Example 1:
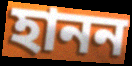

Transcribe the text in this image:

হানন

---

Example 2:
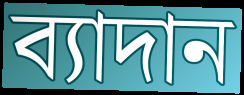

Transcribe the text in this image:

ব্যাদান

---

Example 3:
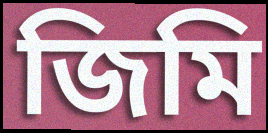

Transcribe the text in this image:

জিমি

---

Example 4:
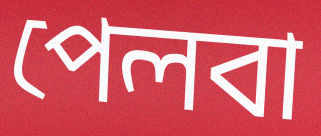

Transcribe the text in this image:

পেলবা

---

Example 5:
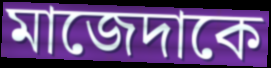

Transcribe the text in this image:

মাজেদাকে